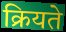
क्रियते